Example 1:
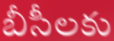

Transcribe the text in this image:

బీసీలకు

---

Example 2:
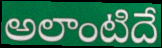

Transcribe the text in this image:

అలాంటిదే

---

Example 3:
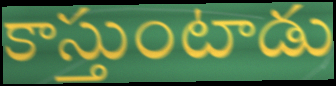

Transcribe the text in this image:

కాస్తుంటాడు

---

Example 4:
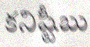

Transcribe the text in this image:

కనిష్టీబు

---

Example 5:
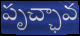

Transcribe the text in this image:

పృచ్ఛావ